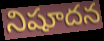
నిషూదన